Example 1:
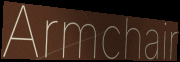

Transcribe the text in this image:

Armchair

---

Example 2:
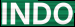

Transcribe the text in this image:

INDO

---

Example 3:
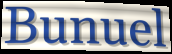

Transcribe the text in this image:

Bunuel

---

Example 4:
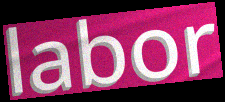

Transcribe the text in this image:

labor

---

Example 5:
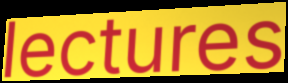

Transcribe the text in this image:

lectures